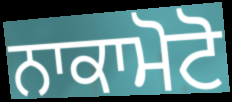
ਨਾਕਾਮੋਟੋ